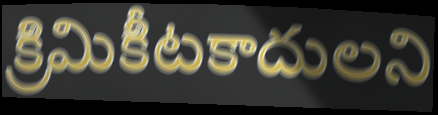
క్రిమికీటకాదులని